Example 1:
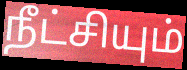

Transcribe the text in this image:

நீட்சியும்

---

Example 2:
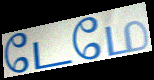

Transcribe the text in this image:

டேமே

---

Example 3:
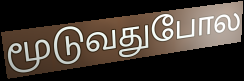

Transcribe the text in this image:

மூடுவதுபோல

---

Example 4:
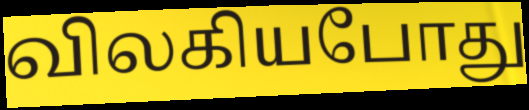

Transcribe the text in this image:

விலகியபோது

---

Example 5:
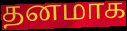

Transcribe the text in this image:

தனமாக